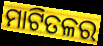
ମାଟିତଳର